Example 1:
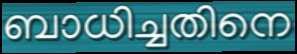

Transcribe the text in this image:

ബാധിച്ചതിനെ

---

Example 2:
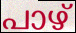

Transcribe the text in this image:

പാഴ്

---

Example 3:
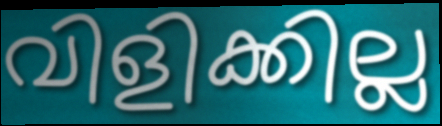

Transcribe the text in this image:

വിളിക്കില്ല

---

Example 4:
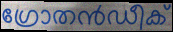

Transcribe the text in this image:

ഗ്രോതൻഡീക്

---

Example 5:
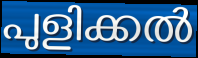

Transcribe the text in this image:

പുളിക്കൽ